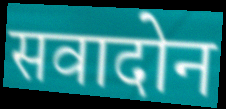
सवादोन